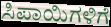
ಸಿಪಾಯಿಗಳಿಗೆ